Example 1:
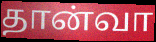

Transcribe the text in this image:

தான்வா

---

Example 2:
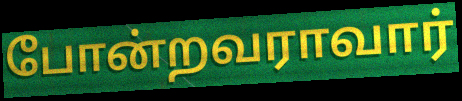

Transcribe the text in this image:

போன்றவராவார்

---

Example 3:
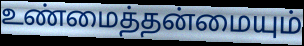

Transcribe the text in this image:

உண்மைத்தன்மையும்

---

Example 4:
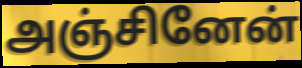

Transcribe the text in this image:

அஞ்சினேன்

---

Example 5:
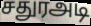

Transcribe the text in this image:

சதுரஅடி